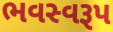
ભવસ્વરૂપ